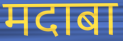
मदाबा